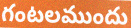
గంటలముందు